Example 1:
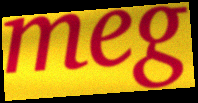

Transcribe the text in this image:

meg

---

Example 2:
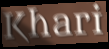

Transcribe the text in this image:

Khari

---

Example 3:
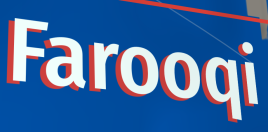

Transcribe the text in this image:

Farooqi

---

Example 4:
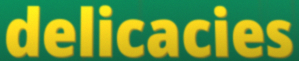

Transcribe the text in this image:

delicacies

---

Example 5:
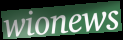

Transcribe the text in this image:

wionews